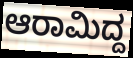
ಆರಾಮಿದ್ದ